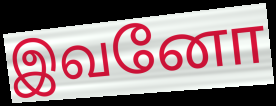
இவனோ